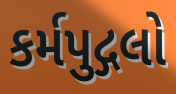
કર્મપુદ્ગલો